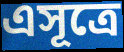
এসূত্রে